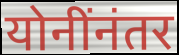
योनींनंतर